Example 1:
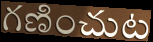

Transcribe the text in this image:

గణించుట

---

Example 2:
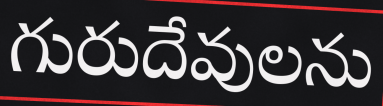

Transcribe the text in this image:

గురుదేవులను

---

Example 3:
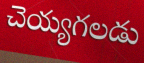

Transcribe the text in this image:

చెయ్యగలడు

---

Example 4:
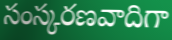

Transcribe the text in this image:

సంస్కరణవాదిగా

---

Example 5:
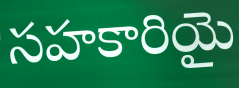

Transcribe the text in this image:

సహకారియై